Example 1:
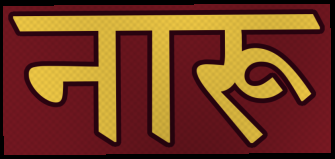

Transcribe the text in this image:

नारू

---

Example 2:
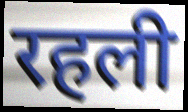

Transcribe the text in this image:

रहली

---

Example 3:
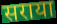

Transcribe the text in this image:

सराया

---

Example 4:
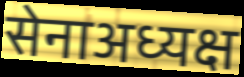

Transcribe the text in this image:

सेनाअध्यक्ष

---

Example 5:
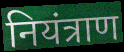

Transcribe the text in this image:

नियंत्राण